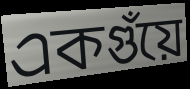
একগুঁয়ে